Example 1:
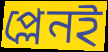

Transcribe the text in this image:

প্লেনই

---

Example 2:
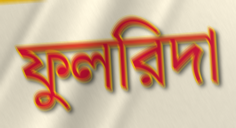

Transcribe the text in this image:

ফুলরিদা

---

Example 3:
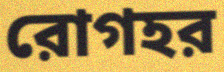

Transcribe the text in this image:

রোগহর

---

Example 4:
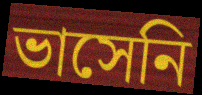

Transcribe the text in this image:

ভাসেনি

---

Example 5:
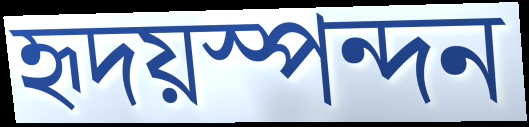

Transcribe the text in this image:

হৃদয়স্পন্দন